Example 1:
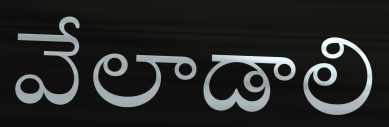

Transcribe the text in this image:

వేలాడాలి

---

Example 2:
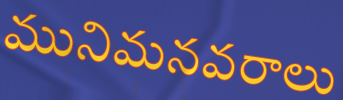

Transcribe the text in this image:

మునిమనవరాలు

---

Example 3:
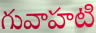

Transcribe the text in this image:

గువాహటి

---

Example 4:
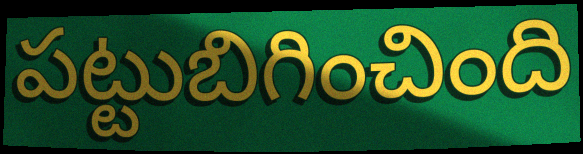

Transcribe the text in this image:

పట్టుబిగించింది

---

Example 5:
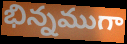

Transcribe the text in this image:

భిన్నముగా